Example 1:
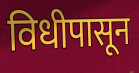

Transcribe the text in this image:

विधीपासून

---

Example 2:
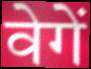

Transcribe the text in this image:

वेगें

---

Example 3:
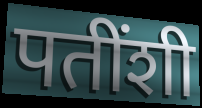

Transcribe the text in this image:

पतींशी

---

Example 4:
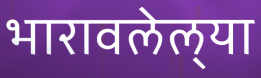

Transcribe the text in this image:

भारावलेल्या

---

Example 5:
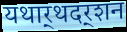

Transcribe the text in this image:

यथार्थदर्शन